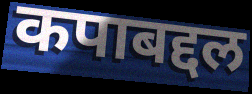
कपाबद्दल